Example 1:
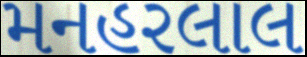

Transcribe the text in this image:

મનહરલાલ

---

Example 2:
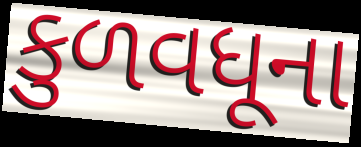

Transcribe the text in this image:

કુળવધૂના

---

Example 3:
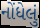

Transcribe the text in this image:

નોંધેલું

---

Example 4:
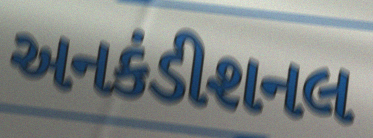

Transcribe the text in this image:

અનકંડીશનલ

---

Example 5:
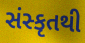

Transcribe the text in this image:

સંસ્કૃતથી